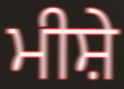
ਮੀਸ਼ੇ